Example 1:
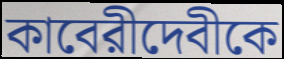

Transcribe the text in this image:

কাবেরীদেবীকে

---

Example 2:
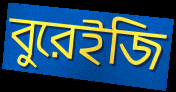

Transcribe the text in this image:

বুরেইজি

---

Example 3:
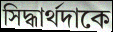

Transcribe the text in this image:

সিদ্ধার্থদাকে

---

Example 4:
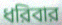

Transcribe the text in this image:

ধরিবার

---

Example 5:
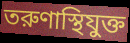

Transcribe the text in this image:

তরুণাস্থিযুক্ত